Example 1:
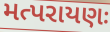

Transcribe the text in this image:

મત્પરાયણઃ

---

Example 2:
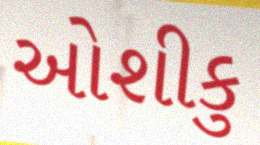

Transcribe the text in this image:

ઓશીકુ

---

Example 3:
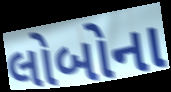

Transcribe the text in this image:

લોબોના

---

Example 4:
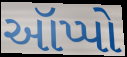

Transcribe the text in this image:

ઑપ્પો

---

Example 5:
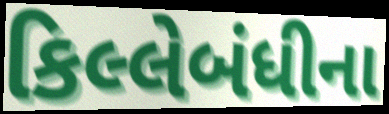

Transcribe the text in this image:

કિલ્લેબંધીના